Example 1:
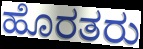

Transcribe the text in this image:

ಹೊರತರು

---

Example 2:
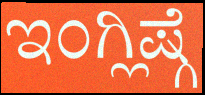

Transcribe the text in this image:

ಇಂಗ್ಲಿಷ್ಗೆ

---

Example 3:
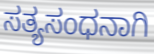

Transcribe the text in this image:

ಸತ್ಯಸಂಧನಾಗಿ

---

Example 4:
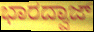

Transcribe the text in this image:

ಭಾರದ್ವಾಜ್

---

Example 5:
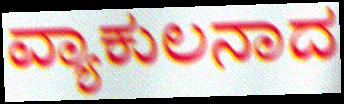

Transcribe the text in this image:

ವ್ಯಾಕುಲನಾದ